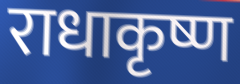
राधाकृष्ण